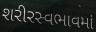
શરીરસ્વભાવમાં